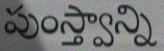
పుంస్త్వాన్ని